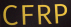
CFRP